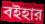
বইহার